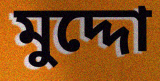
মুদ্দো